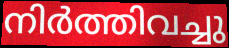
നിർത്തിവച്ചു